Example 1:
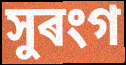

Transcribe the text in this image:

সুৰংগ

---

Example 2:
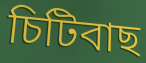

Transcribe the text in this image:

চিটিবাছ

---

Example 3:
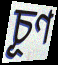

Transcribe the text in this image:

চূণ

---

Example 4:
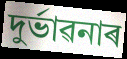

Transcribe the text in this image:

দুৰ্ভাৱনাৰ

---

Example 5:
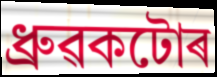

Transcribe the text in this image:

ধ্ৰুৱকটোৰ